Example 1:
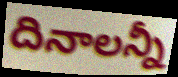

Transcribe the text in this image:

దినాలన్నీ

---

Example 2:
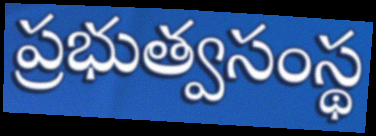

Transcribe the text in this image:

ప్రభుత్వసంస్థ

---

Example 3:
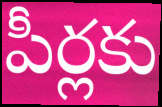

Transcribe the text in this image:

పీర్లకు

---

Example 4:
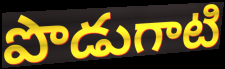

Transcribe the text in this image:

పొడుగాటి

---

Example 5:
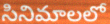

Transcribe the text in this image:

సినిమాలలో